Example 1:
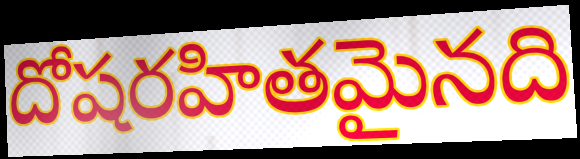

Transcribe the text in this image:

దోషరహితమైనది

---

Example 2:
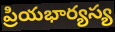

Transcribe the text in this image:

ప్రియభార్యస్య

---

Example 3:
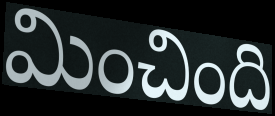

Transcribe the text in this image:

మించింది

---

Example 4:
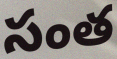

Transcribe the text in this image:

సంత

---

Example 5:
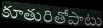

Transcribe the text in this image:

కూతురితోపాటు